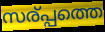
സര്പ്പത്തെ